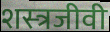
शस्त्रजीवी